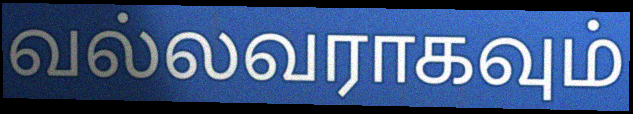
வல்லவராகவும்